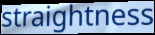
straightness